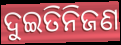
ଦୁଇତିନିଜଣ